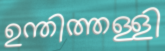
ഉന്തിത്തള്ളി